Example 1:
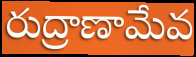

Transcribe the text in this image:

రుద్రాణామేవ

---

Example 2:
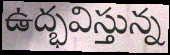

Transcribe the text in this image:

ఉద్భవిస్తున్న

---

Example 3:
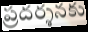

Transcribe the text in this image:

ప్రదర్శనకు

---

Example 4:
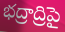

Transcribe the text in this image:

భద్రాద్రిపై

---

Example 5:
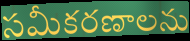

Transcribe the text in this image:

సమీకరణాలను